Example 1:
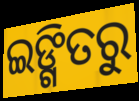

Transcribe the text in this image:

ଇଙ୍ଗିତରୁ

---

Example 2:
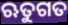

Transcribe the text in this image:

ଋତୁଗତ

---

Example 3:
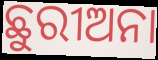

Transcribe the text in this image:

ଛୁରୀଅନା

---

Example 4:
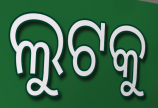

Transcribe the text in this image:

ଲୁଟକୁ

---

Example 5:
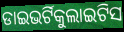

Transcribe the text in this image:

ଡାଇଭର୍ଟିକୁଲାଇଟିସ